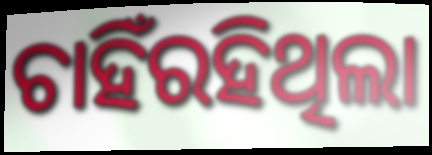
ଚାହିଁରହିଥିଲା